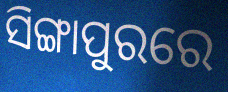
ସିଙ୍ଗାପୁରରେ